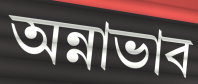
অন্নাভাব